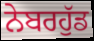
ਨੇਬਰਹੁੱਡ